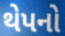
થેપનો